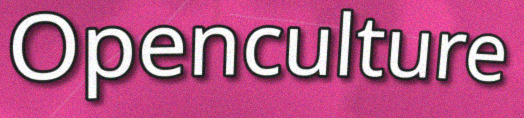
Openculture